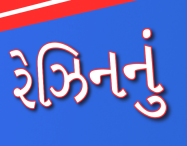
રેઝિનનું